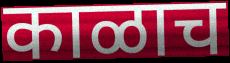
काळाच